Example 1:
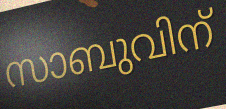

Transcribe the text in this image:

സാബുവിന്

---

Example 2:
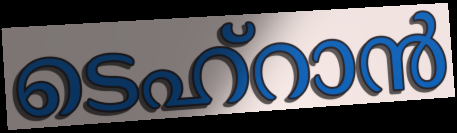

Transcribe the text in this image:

ടെഹ്റാൻ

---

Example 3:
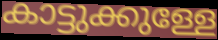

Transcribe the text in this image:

കാട്ടുക്കുള്ളേ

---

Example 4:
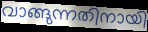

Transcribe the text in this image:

വാങ്ങുന്നതിനായി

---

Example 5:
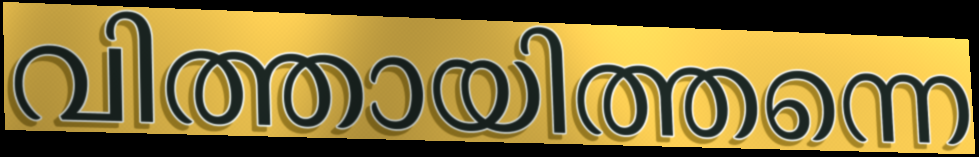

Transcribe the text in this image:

വിത്തായിത്തന്നെ